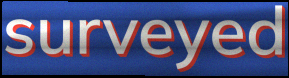
surveyed